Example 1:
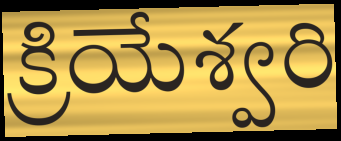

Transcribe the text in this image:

క్రియేశ్వరి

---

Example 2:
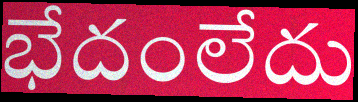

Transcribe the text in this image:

భేదంలేదు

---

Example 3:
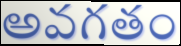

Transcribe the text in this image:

అవగతం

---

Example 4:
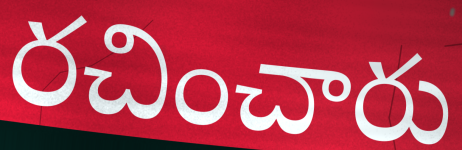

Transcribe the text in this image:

రచించారు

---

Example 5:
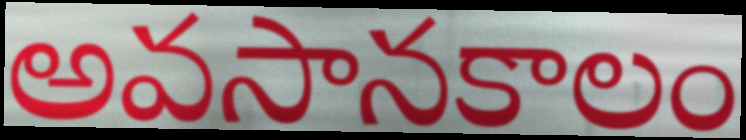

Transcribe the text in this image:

అవసానకాలం